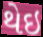
થેઇ